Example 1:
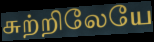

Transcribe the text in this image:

சுற்றிலேயே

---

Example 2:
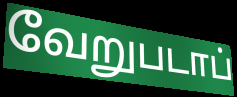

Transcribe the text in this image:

வேறுபடாப்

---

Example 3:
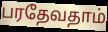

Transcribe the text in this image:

பரதேவதாம்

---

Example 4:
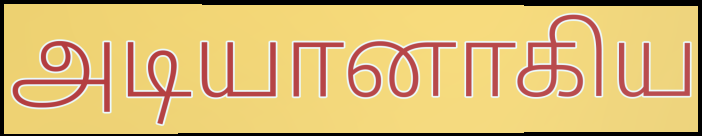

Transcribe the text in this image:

அடியானாகிய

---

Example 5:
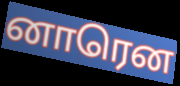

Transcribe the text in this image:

னாரென